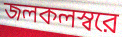
জলকলস্বরে